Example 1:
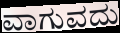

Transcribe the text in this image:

ವಾಗುವದು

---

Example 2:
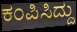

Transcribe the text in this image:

ಕಂಪಿಸಿದ್ದು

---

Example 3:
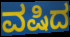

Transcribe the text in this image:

ವಷಿದ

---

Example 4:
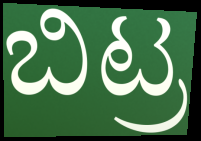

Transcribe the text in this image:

ಬಿಟ್ರ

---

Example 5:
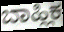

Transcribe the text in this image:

ಬಾಹ್ಲಿಕ